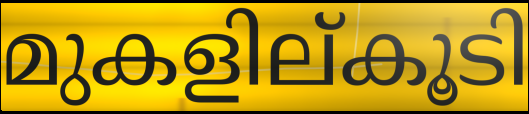
മുകളില്കൂടി